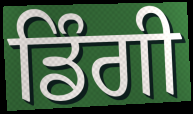
ਡਿੰਗੀ